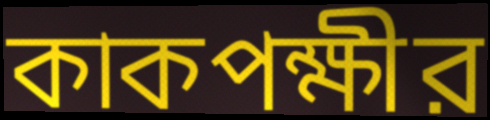
কাকপক্ষীর